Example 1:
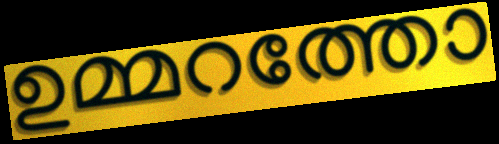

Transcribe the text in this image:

ഉമ്മറത്തോ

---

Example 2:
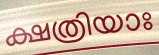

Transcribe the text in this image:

ക്ഷത്രിയാഃ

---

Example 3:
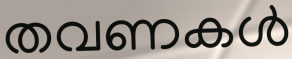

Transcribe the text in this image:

തവണകൾ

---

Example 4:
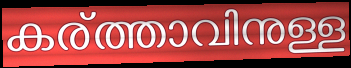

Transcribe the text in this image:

കര്ത്താവിനുള്ള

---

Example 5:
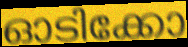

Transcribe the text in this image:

ഓടിക്കോ